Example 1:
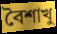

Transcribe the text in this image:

বৈশাখু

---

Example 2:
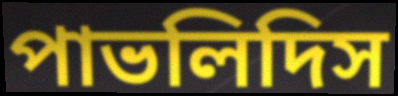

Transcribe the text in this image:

পাভলিদিস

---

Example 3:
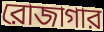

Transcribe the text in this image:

রোজাগার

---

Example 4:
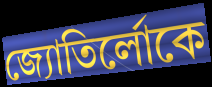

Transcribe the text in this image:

জ্যোতির্লোকে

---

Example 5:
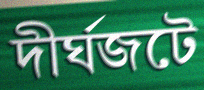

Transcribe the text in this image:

দীর্ঘজটে